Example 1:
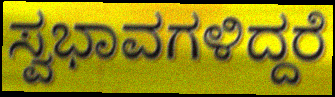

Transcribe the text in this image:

ಸ್ವಭಾವಗಳಿದ್ದರೆ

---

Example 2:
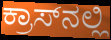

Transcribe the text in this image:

ಕ್ರಾಸ್‌ನಲ್ಲಿ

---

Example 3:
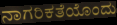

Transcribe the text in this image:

ನಾಗರಿಕತೆಯೊಂದು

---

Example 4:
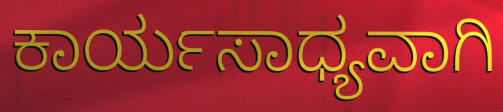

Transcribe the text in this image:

ಕಾರ್ಯಸಾಧ್ಯವಾಗಿ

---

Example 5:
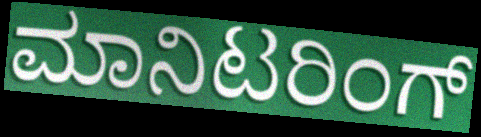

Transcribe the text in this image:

ಮಾನಿಟರಿಂಗ್